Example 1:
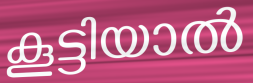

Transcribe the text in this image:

കൂട്ടിയാൽ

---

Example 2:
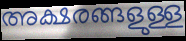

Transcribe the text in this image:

അക്ഷരങ്ങളുള്ള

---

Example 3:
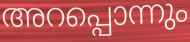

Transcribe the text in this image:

അറപ്പൊന്നും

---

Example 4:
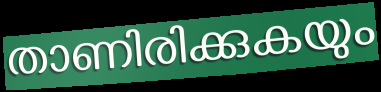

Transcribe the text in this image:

താണിരിക്കുകയും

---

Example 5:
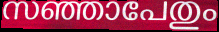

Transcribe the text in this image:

സഞ്ഞാപേതും